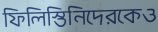
ফিলিস্তিনিদেরকেও